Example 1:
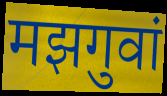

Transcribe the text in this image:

मझगुवां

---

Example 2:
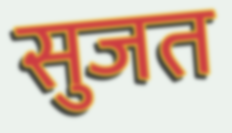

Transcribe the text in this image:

सुजत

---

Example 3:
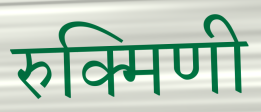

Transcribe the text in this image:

रुक्मिणी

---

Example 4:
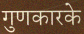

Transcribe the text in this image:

गुणकारके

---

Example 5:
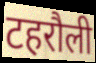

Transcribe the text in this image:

टहरौली